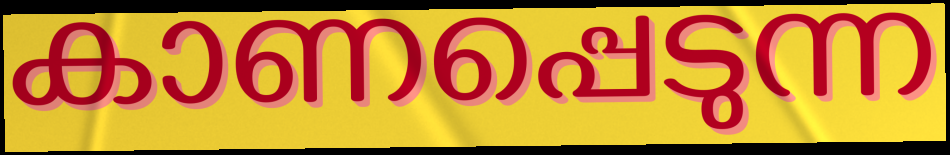
കാണപ്പെടുന്ന